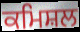
ਕਮਿਸ਼ਲ